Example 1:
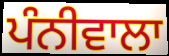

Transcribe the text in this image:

ਪੰਨੀਵਾਲਾ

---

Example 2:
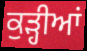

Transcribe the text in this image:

ਕੁੜ੍ਹੀਆਂ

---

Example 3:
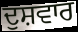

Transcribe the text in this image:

ਦੁਸ਼ਵਾਰ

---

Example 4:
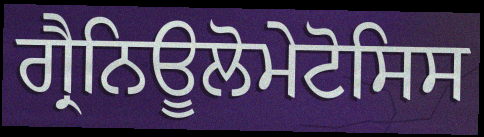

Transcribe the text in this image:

ਗ੍ਰੈਨਿਊਲੋਮੇਟੋਸਿਸ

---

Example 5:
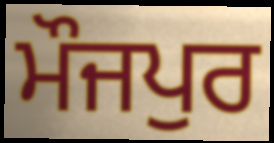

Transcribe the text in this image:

ਮੌਜਪੁਰ